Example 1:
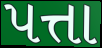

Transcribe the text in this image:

પત્તા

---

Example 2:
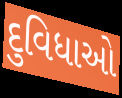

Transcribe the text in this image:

દુવિધાઓ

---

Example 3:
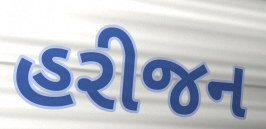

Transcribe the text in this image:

હરીજન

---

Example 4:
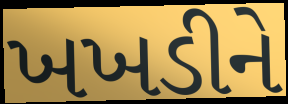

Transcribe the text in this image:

ખખડીને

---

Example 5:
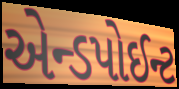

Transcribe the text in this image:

એન્ડપોઈન્ટ